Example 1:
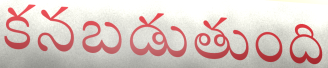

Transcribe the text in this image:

కనబడుతుంది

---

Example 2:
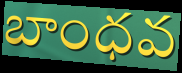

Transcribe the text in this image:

బాంధవ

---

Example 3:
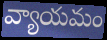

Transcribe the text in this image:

వ్యాయమం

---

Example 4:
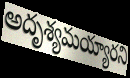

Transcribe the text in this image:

అదృశ్యమయ్యారని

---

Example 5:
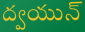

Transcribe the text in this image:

ద్వయున్